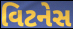
વિટનેસ